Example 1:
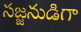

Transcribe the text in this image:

సజ్జనుడిగా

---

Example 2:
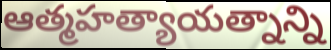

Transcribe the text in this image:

ఆత్మహత్యాయత్నాన్ని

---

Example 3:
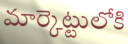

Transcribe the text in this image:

మార్కెట్టులోకి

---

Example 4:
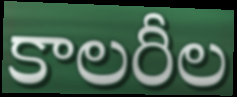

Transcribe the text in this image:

కాలరీల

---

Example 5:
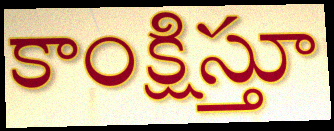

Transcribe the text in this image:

కాంక్షిస్తూ